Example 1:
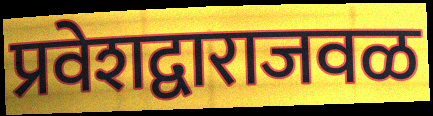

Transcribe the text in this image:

प्रवेशद्वाराजवळ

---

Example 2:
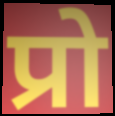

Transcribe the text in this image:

प्रो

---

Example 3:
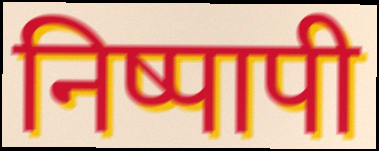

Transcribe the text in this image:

निष्पापी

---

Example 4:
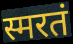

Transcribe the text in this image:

स्मरतं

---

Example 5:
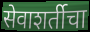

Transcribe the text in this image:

सेवाशर्तीचा